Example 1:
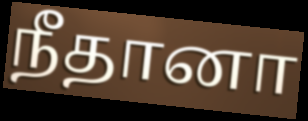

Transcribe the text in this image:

நீதானா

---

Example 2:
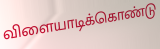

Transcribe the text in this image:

விளையாடிக்கொண்டு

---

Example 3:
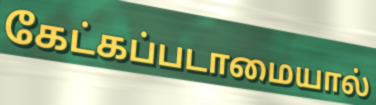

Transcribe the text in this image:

கேட்கப்படாமையால்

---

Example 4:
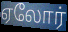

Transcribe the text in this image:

ஏலோர்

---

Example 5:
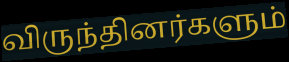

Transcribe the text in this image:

விருந்தினர்களும்